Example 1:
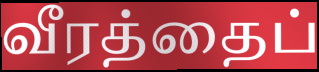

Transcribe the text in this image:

வீரத்தைப்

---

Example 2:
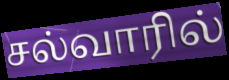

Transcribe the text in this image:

சல்வாரில்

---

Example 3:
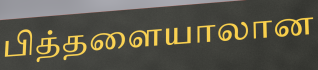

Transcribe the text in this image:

பித்தளையாலான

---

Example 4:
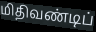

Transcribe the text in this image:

மிதிவண்டிப்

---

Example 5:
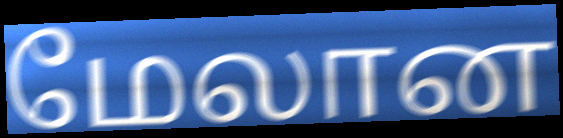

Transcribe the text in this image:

மேலான